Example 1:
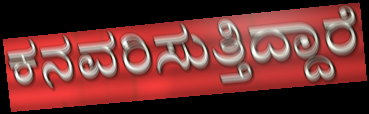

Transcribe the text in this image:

ಕನವರಿಸುತ್ತಿದ್ದಾರೆ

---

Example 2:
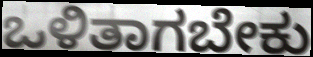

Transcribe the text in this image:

ಒಳಿತಾಗಬೇಕು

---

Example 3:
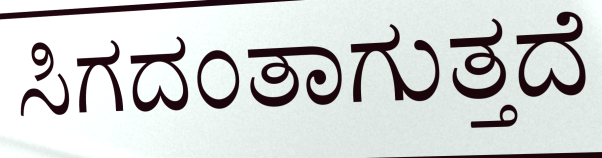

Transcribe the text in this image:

ಸಿಗದಂತಾಗುತ್ತದೆ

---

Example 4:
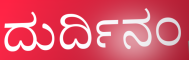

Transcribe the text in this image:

ದುರ್ದಿನಂ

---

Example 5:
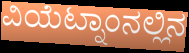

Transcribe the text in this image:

ವಿಯೆಟ್ನಾಂನಲ್ಲಿನ